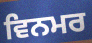
ਵਿਨਮਰ